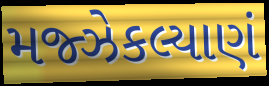
મજ્ઝેકલ્યાણં